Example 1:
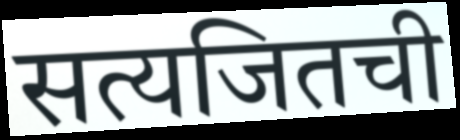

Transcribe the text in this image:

सत्यजितची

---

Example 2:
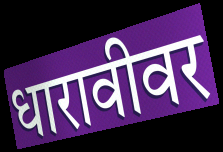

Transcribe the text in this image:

धारावीवर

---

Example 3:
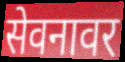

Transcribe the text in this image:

सेवनावर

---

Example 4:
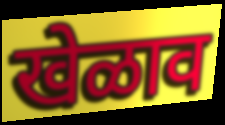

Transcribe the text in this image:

खेळाव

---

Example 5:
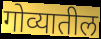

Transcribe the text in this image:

गोव्यातील